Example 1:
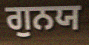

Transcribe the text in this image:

ਗੁਨਯ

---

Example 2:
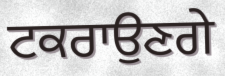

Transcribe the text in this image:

ਟਕਰਾਉਣਗੇ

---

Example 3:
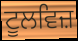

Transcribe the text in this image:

ਟੂਲਵਿਜ਼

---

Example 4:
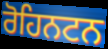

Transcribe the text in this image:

ਰੋਹਿਨਟਨ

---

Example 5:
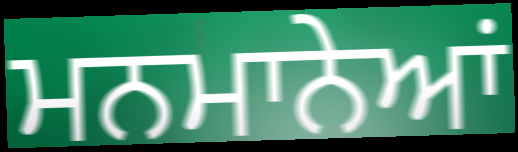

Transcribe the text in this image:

ਮਨਮਾਨੇਆਂ